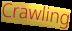
Crawling